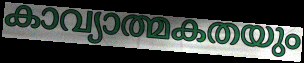
കാവ്യാത്മകതയും